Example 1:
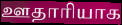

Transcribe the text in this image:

ஊதாரியாக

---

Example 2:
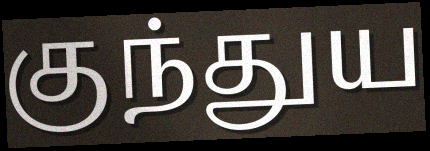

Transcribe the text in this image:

குந்துய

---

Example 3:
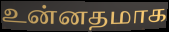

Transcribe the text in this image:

உன்னதமாக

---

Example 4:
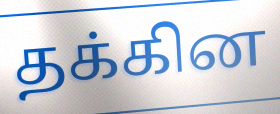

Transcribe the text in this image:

தக்கின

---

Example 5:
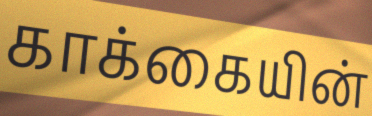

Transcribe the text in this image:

காக்கையின்